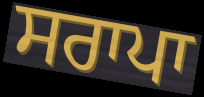
ਸਰਾਪਾ